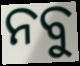
ନବୁ